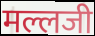
मल्लजी